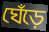
ঘেঁড়ে